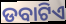
ଡବାଟିଏ